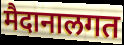
मैदानालगत